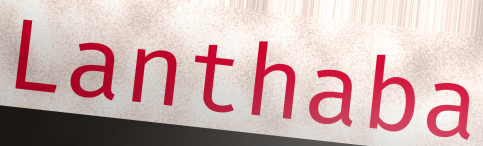
Lanthaba